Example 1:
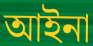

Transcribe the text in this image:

আইনা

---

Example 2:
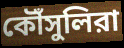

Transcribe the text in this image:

কৌঁসুলিরা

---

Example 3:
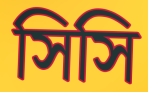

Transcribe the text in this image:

সিসি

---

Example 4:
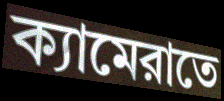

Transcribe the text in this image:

ক্যামেরাতে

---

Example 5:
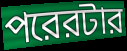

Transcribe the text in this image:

পরেরটার